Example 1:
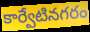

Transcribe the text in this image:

కార్వేటినగరం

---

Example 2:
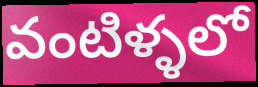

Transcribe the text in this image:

వంటిళ్ళలో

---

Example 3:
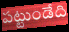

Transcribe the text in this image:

పట్టుండేది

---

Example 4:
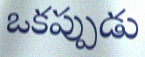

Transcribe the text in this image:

ఒకప్పుడు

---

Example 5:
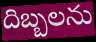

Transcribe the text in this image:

దిబ్బలను